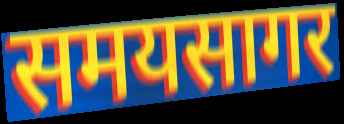
समयसागर